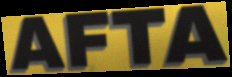
AFTA